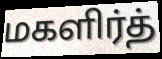
மகளிர்த்